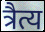
त्रैत्य